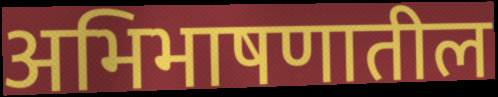
अभिभाषणातील